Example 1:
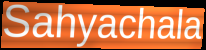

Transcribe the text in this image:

Sahyachala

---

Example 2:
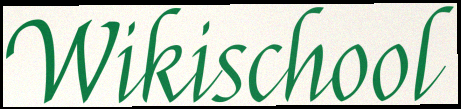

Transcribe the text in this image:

Wikischool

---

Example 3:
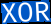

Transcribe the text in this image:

XOR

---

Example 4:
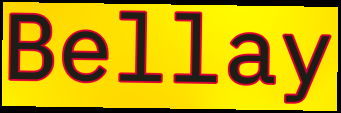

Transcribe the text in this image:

Bellay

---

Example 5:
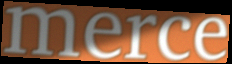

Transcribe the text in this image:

merce